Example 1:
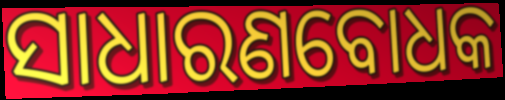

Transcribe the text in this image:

ସାଧାରଣବୋଧକ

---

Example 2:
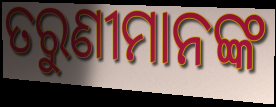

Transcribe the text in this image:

ତରୁଣୀମାନଙ୍କ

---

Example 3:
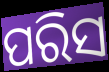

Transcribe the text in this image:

ପରିସ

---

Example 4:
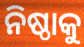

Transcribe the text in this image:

ନିଷ୍ଠାକୁ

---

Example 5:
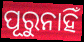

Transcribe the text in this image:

ପୂରୁନାହିଁ